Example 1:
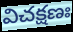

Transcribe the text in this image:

విచక్షణః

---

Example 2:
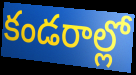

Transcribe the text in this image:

కండరాల్లో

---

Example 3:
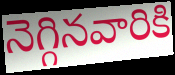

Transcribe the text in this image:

నెగ్గినవారికి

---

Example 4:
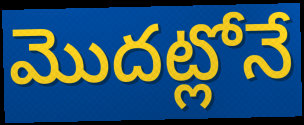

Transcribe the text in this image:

మొదట్లోనే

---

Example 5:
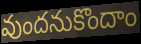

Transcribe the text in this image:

వుందనుకొందాం